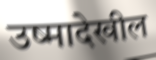
उष्मादेखील